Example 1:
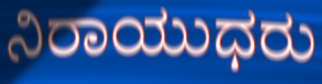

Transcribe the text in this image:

ನಿರಾಯುಧರು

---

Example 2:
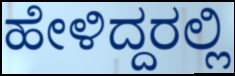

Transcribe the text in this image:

ಹೇಳಿದ್ದರಲ್ಲಿ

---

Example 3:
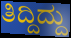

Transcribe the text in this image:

ತಿದ್ದಿದ್ದು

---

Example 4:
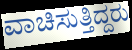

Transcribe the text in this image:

ವಾಚಿಸುತ್ತಿದ್ದರು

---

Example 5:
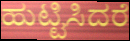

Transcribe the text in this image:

ಹುಟ್ಟಿಸಿದರೆ